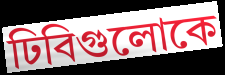
ঢিবিগুলোকে